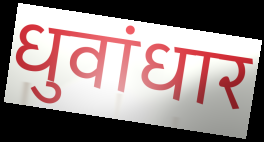
धुवांधार